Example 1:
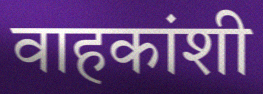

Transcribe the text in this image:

वाहकांशी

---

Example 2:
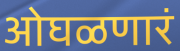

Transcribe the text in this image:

ओघळणारं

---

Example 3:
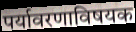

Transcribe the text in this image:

पर्यावरणाविषयक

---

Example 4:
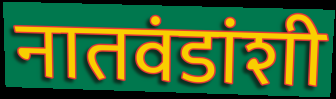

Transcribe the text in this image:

नातवंडांशी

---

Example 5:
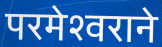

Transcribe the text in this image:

परमेश्वराने